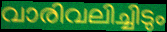
വാരിവലിച്ചിടും